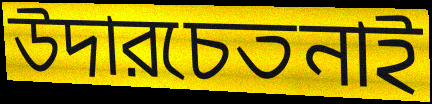
উদারচেতনাই